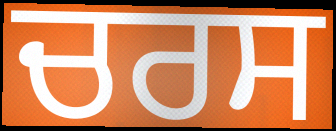
ਚਰਸ